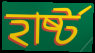
হাৰ্ষ্ট